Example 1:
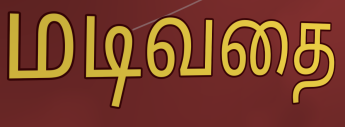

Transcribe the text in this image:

மடிவதை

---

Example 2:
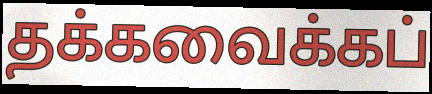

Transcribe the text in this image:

தக்கவைக்கப்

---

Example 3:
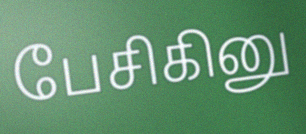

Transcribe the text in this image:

பேசிகினு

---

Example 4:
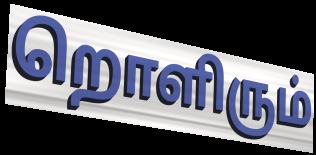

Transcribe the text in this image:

றொளிரும்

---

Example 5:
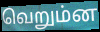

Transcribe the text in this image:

வெறும்ன